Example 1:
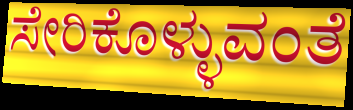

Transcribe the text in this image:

ಸೇರಿಕೊಳ್ಳುವಂತೆ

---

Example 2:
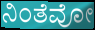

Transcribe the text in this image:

ನಿಂತೆವೋ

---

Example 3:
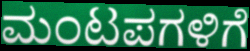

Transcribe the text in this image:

ಮಂಟಪಗಳಿಗೆ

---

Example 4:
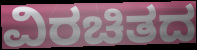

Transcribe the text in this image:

ವಿರಚಿತದ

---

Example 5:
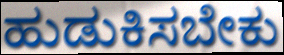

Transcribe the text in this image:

ಹುಡುಕಿಸಬೇಕು